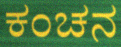
ಕಂಚನ